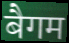
बैगम